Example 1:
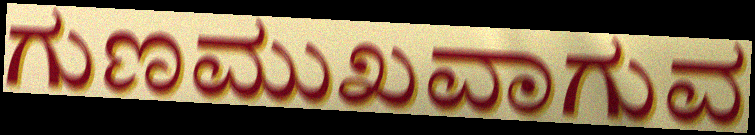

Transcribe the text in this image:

ಗುಣಮುಖವಾಗುವ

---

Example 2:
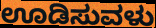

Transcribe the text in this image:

ಊಡಿಸುವಳು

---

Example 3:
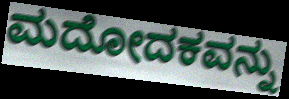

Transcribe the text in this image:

ಮದೋದಕವನ್ನು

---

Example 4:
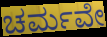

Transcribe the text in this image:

ಚರ್ಮವೇ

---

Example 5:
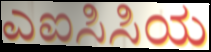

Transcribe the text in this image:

ಎಐಸಿಸಿಯ